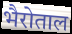
भैरोताल